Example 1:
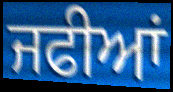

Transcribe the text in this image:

ਜਫੀਆਂ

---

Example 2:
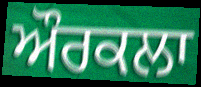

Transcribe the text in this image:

ਔਰਕਲਾ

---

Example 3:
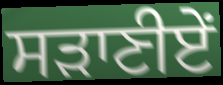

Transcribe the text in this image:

ਸੜਾਣੀਏਂ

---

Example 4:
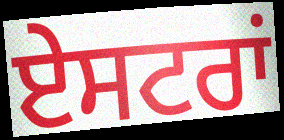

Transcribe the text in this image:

ਏਸਟਰਾਂ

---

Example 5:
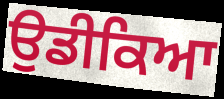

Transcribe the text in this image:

ਉਡੀਕਿਆ